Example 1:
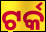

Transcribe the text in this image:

ଟର୍କ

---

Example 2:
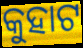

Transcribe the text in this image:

କୁହାଟ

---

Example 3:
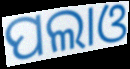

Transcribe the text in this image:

ପଲାଓ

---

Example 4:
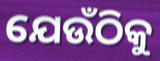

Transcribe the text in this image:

ଯେଉଁଠିକୁ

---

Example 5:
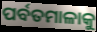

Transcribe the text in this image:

ପର୍ବତମାଳାକୁ